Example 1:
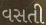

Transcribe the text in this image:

વસતી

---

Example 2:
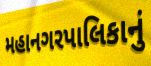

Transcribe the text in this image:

મહાનગરપાલિકાનું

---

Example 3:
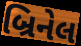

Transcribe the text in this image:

બ્રિનેલ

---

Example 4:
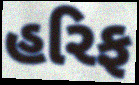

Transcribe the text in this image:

હરિફ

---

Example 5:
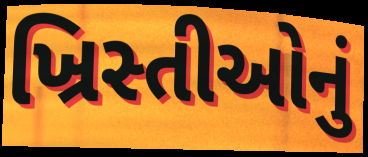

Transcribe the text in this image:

ખ્રિસ્તીઓનું